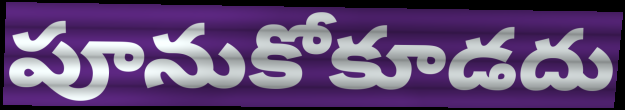
పూనుకోకూడదు